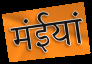
मंईयां